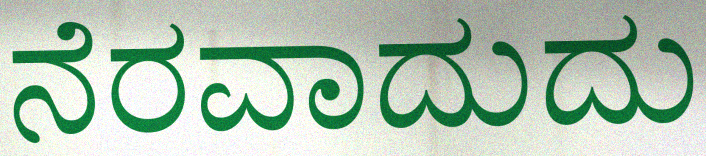
ನೆರವಾದುದು